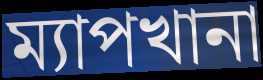
ম্যাপখানা